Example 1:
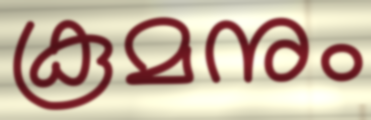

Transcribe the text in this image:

കൂമനും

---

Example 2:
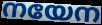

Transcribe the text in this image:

നയേന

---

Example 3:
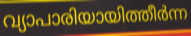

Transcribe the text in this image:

വ്യാപാരിയായിത്തീർന്ന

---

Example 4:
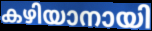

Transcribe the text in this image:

കഴിയാനായി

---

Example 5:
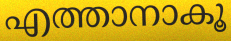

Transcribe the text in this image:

എത്താനാകൂ